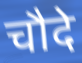
चौदे